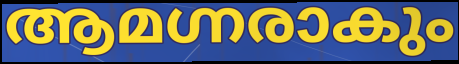
ആമഗ്നരാകും